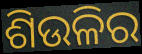
ଶିଉଳିର